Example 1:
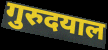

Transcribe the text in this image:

गुरुदयाल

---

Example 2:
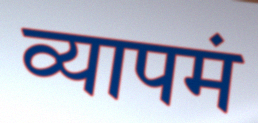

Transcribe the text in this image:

व्‍यापमं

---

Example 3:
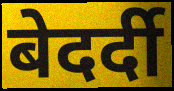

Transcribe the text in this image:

बेदर्दी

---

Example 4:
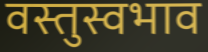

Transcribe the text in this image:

वस्तुस्वभाव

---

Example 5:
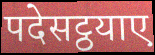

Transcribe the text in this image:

पदेसट्ठयाए